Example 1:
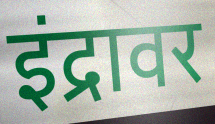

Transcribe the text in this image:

इंद्रावर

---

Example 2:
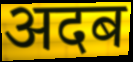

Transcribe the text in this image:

अदब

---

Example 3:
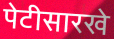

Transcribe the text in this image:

पेटीसारखे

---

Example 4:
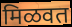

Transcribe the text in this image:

मिळवत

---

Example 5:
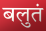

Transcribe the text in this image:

बलुतं